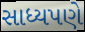
સાધ્યપણે